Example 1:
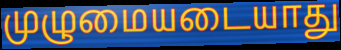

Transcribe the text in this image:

முழுமையடையாது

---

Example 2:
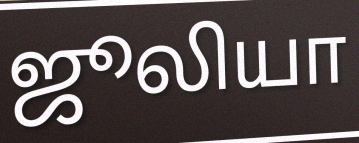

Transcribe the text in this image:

ஜூலியா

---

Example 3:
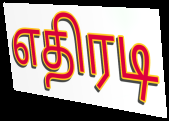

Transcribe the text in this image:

எதிரடி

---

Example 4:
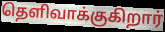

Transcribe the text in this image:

தெளிவாக்குகிறார்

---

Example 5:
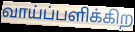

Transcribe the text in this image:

வாய்ப்பளிக்கிற